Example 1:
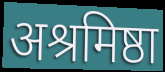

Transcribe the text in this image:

अश्रमिष्ठा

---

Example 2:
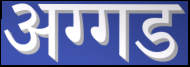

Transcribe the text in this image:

अग्गड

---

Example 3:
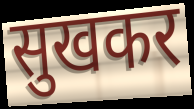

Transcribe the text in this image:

सुखकर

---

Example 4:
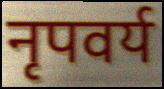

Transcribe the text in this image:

नृपवर्य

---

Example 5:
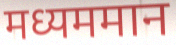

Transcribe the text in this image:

मध्यममान